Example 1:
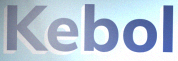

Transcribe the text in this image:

Kebol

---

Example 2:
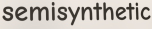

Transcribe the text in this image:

semisynthetic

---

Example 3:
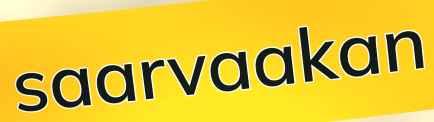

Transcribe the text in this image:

saarvaakan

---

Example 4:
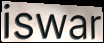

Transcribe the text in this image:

iswar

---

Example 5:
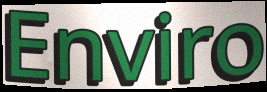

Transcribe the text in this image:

Enviro